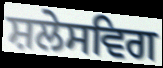
ਸ਼ਲੇਸਵਿਗ